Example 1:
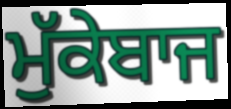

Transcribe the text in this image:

ਮੁੱਕੇਬਾਜ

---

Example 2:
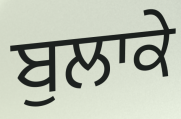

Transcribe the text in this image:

ਬੁਲਾਕੇ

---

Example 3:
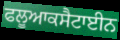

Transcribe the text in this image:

ਫਲੂਆਕਸੈਟਾਈਨ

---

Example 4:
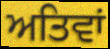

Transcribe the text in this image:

ਅਤਿਵਾਂ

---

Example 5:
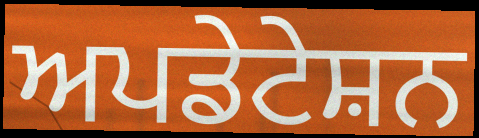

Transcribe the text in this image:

ਅਪਡੇਟੇਸ਼ਨ